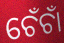
ଚେଁଚାଁ